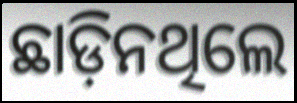
ଛାଡ଼ିନଥିଲେ